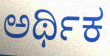
ಅರ್ಥಿಕ